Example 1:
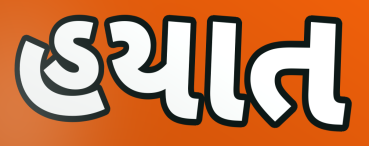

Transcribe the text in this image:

હયાત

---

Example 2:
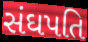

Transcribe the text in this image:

સંઘપતિ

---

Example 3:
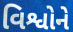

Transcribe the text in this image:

વિશ્વોને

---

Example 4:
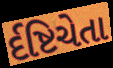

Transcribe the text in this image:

ર્દષ્ટિચેતા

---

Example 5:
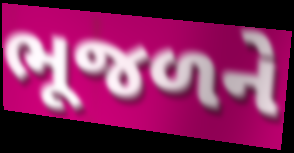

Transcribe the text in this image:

ભૂજળને